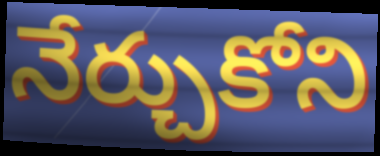
నేర్చుకోని